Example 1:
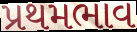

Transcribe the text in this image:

પ્રથમભાવ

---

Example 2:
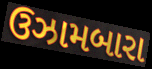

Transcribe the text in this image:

ઉઝામબારા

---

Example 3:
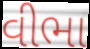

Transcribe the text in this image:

વીભા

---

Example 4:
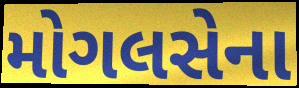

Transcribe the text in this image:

મોગલસેના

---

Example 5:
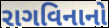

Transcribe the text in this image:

રાગવિનાનો